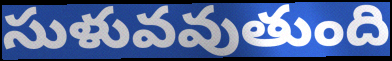
సుళువవుతుంది